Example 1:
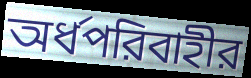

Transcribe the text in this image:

অর্ধপরিবাহীর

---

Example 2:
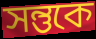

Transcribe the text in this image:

সন্তুকে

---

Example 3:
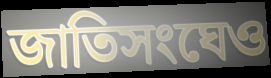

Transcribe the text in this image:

জাতিসংঘেও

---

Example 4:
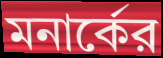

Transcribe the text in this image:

মনার্কের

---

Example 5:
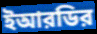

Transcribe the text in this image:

ইআরডির